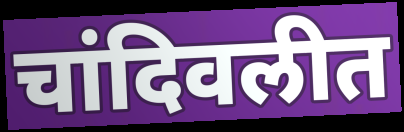
चांदिवलीत